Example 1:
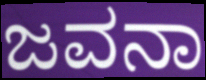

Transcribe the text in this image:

ಜವನಾ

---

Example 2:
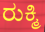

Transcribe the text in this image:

ರುಕ್ಮಿ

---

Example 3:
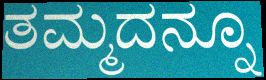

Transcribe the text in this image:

ತಮ್ಮದನ್ನೂ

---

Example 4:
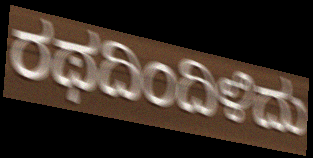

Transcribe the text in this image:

ರಥದಿಂದಿಳಿದು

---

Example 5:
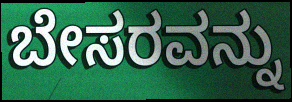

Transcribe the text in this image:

ಬೇಸರವನ್ನು